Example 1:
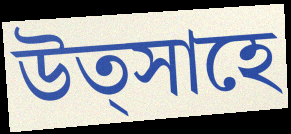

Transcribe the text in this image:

উত্সাহে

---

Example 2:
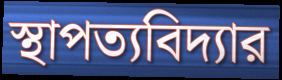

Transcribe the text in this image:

স্থাপত্যবিদ্যার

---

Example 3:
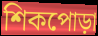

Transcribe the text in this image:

শিকপোড়া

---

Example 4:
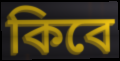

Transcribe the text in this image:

কিবে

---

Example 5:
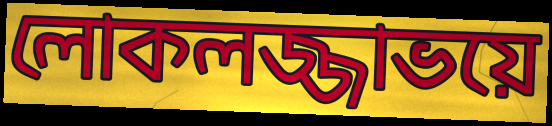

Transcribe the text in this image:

লোকলজ্জাভয়ে